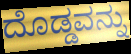
ದೊಡ್ಡವನ್ನು